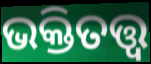
ଭକ୍ତିତତ୍ତ୍ୱ